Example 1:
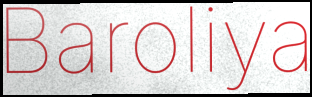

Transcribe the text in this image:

Baroliya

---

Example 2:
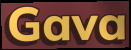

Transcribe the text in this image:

Gava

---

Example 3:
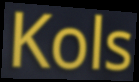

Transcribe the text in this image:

Kols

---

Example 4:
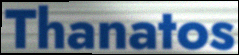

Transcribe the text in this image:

Thanatos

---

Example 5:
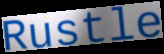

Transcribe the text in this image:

Rustle